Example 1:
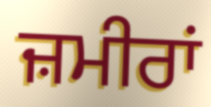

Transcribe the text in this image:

ਜ਼ਮੀਰਾਂ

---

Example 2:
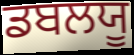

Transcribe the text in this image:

ਡਬਲਯੂ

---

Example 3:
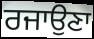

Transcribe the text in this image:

ਰਜਾਉਣਾ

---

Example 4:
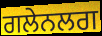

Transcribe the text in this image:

ਗਲੇਨਲਗ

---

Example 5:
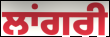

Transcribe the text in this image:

ਲਾਂਗਰੀ